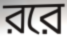
ররে